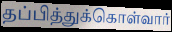
தப்பித்துக்கொள்வார்